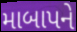
માબાપને